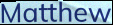
Matthew